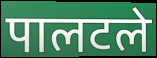
पालटले